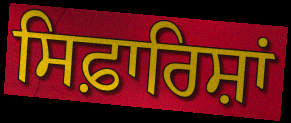
ਸਿਫ਼ਾਰਿਸ਼ਾਂ